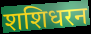
शशिधरन